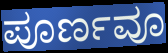
ಪೂರ್ಣವೂ